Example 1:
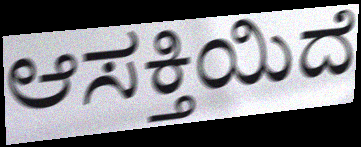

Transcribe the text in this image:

ಆಸಕ್ತಿಯಿದೆ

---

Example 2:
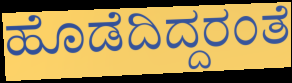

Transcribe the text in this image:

ಹೊಡೆದಿದ್ದರಂತೆ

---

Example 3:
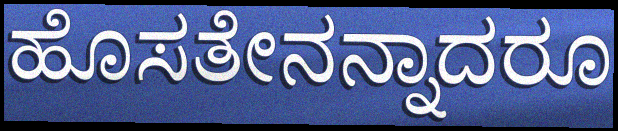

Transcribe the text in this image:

ಹೊಸತೇನನ್ನಾದರೂ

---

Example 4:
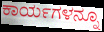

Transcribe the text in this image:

ಕಾರ್ಯಗಳನ್ನೂ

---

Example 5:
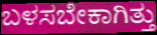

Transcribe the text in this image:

ಬಳಸಬೇಕಾಗಿತ್ತು